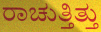
ರಾಚುತ್ತಿತ್ತು